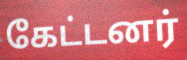
கேட்டனர்